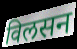
विलसन